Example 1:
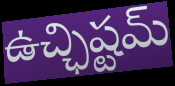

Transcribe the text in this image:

ఉచ్ఛిష్టమ్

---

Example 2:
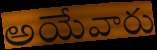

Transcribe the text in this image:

అయేవారు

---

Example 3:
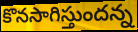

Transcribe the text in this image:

కొనసాగిస్తుందన్న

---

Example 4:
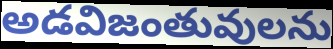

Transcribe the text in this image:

అడవిజంతువులను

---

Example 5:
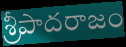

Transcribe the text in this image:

శ్రీపాదరాజం